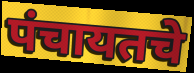
पंचायतचे